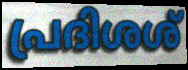
പ്രദിശശ്